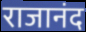
राजानंद